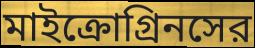
মাইক্রোগ্রিনসের